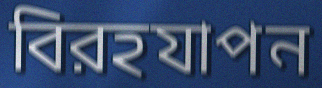
বিরহযাপন